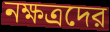
নক্ষত্রদের